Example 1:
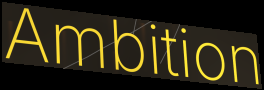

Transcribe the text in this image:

Ambition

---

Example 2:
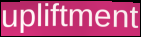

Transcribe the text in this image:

upliftment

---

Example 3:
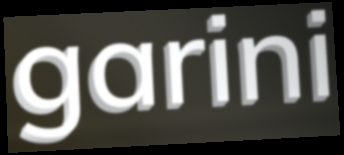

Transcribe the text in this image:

garini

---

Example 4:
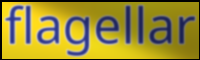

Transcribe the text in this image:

flagellar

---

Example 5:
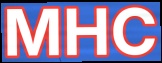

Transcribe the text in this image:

MHC